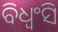
ବିଧ୍ୱଂସି